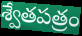
శ్వేతపత్రం